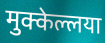
मुक्केल्लया